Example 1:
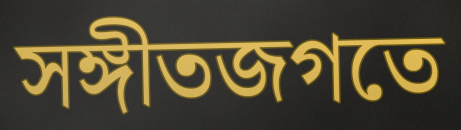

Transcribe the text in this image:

সঙ্গীতজগতে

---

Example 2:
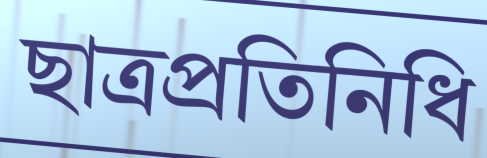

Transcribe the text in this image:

ছাত্রপ্রতিনিধি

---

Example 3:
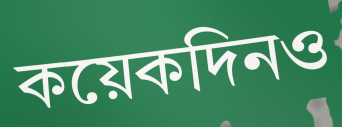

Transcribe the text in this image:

কয়েকদিনও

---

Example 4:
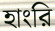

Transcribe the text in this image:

হাংরি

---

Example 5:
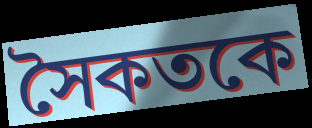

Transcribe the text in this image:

সৈকতকে